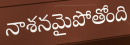
నాశనమైపోతోంది